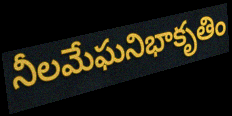
నీలమేఘనిభాకృతిం